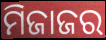
ମିଜାଜର